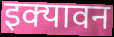
इक्यावन